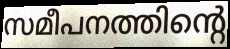
സമീപനത്തിന്റെ